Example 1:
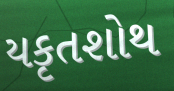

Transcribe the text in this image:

યકૃતશોથ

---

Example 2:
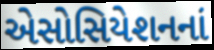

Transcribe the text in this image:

એસોસિયેશનનાં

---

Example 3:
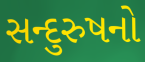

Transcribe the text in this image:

સન્દુરુષનો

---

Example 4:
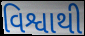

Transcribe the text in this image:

વિશ્વાથી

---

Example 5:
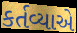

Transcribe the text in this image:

કર્તવ્યાએ